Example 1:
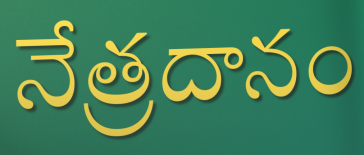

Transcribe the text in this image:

నేత్రదానం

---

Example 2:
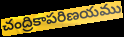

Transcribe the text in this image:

చంద్రికాపరిణయము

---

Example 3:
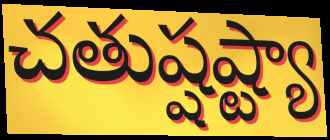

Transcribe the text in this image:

చతుష్షష్ట్యా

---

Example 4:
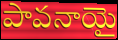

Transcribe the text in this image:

పావనాయై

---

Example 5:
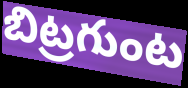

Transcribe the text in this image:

బిట్రగుంట